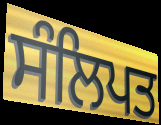
ਸੰਲਿਪਤ